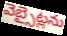
వెబ్సైట్లను